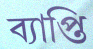
ব্য়াপ্তি